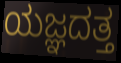
ಯಜ್ಞದತ್ತ